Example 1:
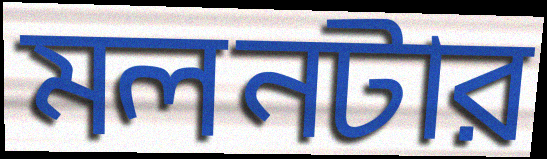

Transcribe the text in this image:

মলনটার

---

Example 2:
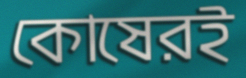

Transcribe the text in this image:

কোষেরই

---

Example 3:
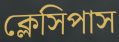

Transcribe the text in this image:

ক্লেসিপাস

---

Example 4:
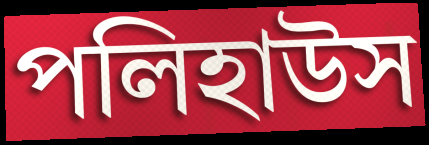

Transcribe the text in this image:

পলিহাউস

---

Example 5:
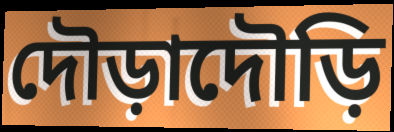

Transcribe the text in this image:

দৌড়াদৌড়ি